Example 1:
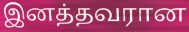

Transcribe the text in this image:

இனத்தவரான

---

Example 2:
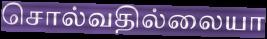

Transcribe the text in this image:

சொல்வதில்லையா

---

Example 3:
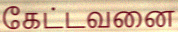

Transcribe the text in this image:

கேட்டவனை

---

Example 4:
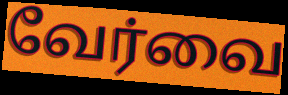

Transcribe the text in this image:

வேர்வை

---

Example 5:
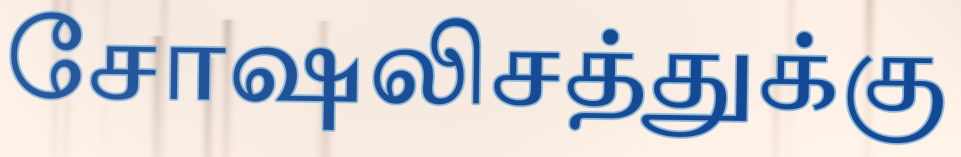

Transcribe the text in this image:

சோஷலிசத்துக்கு